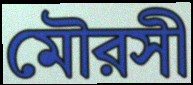
মৌরসী